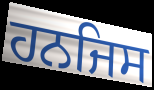
ਹਨਜਿਸ